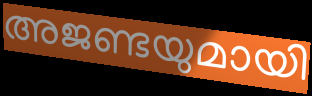
അജണ്ടയുമായി